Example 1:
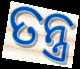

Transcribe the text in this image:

ତନ୍ତ୍ର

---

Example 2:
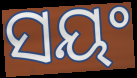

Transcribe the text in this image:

ସୟଂ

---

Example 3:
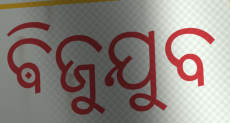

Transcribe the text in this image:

ଵିଜୁଯୁବ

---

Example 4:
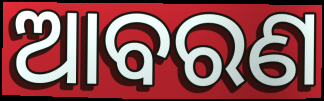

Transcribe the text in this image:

ଆବରଣ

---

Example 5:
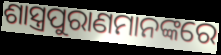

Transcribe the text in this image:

ଶାସ୍ତ୍ରପୁରାଣମାନଙ୍କରେ